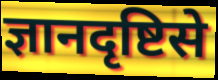
ज्ञानदृष्टिसे